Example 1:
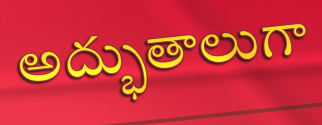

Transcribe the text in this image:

అద్భుతాలుగా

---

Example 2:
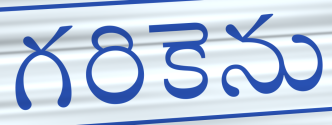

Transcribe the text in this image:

గరికెను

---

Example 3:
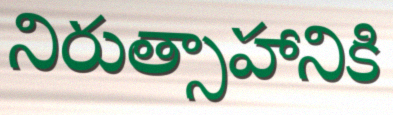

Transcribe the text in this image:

నిరుత్సాహానికి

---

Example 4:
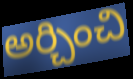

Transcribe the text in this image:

అర్చించి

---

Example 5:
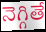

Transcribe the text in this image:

నెగ్గితే